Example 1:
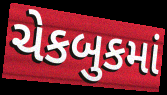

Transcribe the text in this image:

ચેકબુકમાં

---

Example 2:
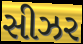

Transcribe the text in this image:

સીઝર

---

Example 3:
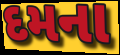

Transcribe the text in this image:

દમના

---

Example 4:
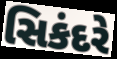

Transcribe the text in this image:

સિકંદરે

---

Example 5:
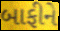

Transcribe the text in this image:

બાફીને